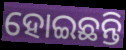
ହୋଇଛନ୍ତି